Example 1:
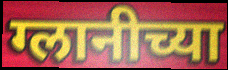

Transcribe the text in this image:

ग्लानीच्या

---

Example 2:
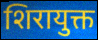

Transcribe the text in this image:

शिरायुक्त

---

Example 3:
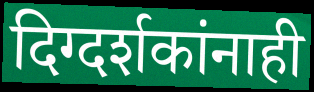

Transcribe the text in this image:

दिग्दर्शकांनाही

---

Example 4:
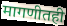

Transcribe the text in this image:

मागणीतही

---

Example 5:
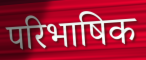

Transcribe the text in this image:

परिभाषिक